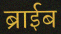
ब्राईब